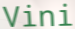
Vini